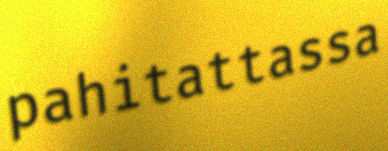
pahitattassa